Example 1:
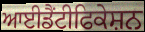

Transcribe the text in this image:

ਆਈਡੈਂਟੀਫਿਕੇਸ਼ਨ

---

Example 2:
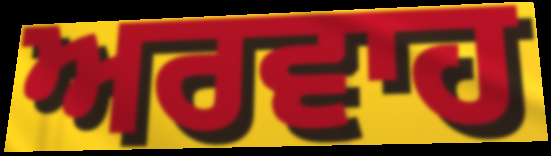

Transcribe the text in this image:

ਅਰਵਾਹ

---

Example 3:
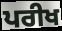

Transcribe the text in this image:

ਪਰੀਖ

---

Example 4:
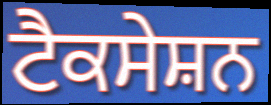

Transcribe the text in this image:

ਟੈਕਸੇਸ਼ਨ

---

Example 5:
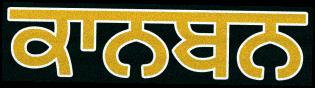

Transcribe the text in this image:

ਕਾਨਬਨ